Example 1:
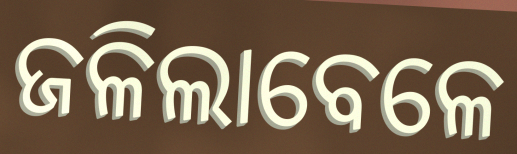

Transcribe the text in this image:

ଜଳିଲାବେଳେ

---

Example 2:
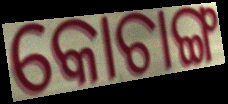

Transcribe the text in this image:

କୋଚାଙ୍ଗ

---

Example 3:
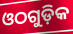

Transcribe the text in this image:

ଓଠଗୁଡ଼ିକ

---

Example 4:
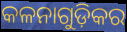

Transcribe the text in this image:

କଳନାଗୁଡ଼ିକର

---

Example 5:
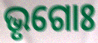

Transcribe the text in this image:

ଭୃଗୋଃ